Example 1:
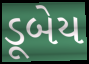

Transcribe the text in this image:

ડૂબેય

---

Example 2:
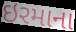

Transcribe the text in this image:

ઇરમાના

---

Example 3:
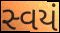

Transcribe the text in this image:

સ્વયં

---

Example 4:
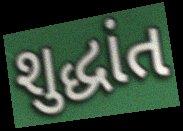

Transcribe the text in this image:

શુદ્ધાંત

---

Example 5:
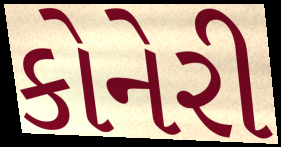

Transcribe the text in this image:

કોનેરી